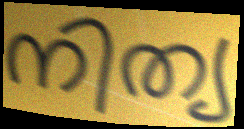
നിത്യ